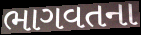
ભાગવતના